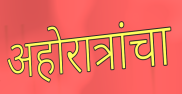
अहोरात्रांचा